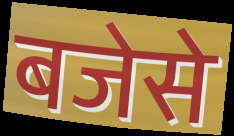
बजेसे